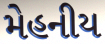
મેહનીય